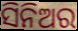
ସିନିଅର